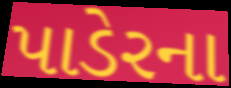
પાડેરના